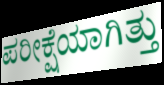
ಪರೀಕ್ಷೆಯಾಗಿತ್ತು